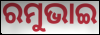
ରମୁଭାଇ